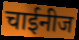
चाईनीज